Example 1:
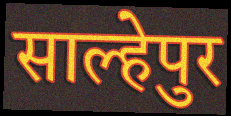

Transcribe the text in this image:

साल्हेपुर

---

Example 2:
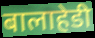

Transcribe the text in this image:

बालाहेडी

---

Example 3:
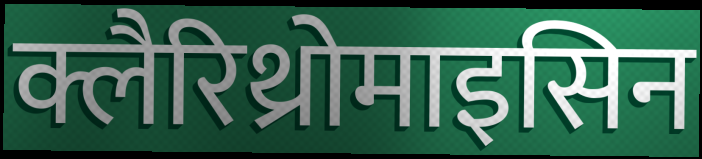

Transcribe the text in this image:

क्लैरिथ्रोमाइसिन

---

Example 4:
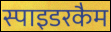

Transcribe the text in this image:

स्पाइडरकैम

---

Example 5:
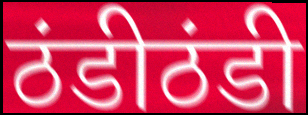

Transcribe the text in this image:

ठंडीठंडी